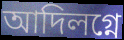
আদিলগ্নে